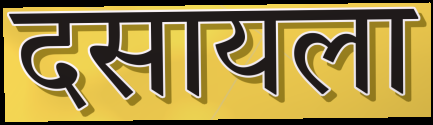
दसायला